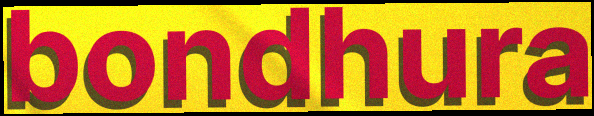
bondhura